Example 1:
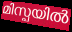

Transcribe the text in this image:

മിസ്പയിൽ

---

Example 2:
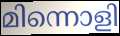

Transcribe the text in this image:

മിന്നൊളി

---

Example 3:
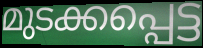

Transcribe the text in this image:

മുടക്കപ്പെട്ട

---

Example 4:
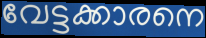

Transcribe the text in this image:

വേട്ടക്കാരനെ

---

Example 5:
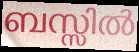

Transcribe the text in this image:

ബസ്സിൽ